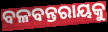
ବଳବନ୍ତରାୟକୁ